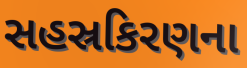
સહસ્રકિરણના